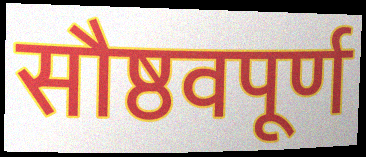
सौष्ठवपूर्ण